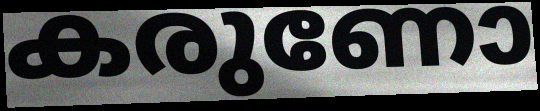
കരുണോ